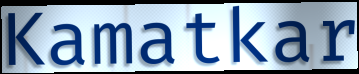
Kamatkar